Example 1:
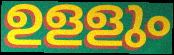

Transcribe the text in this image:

ഉളളും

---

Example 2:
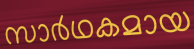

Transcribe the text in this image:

സാർഥകമായ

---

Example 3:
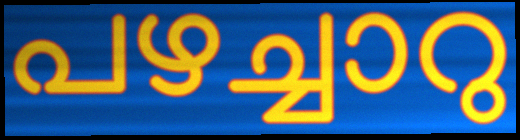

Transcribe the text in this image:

പഴച്ചാറു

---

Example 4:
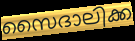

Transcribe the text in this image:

സൈദാലിക്ക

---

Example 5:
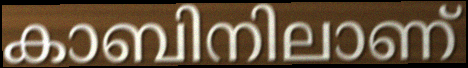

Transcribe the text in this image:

കാബിനിലാണ്